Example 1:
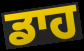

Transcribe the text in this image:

ਡਾਹ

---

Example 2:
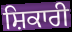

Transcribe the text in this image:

ਸ਼ਿਕਾਰੀ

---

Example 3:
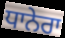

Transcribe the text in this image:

ਧਾਨੇਰਾ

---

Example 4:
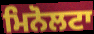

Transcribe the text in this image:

ਮਿਨੋਲਟਾ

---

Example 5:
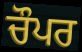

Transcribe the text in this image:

ਚੌਪਰ